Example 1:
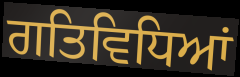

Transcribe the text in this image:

ਗਤਿਵਿਧਿਆਂ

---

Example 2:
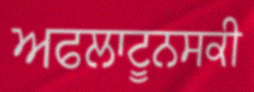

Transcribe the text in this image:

ਅਫਲਾਟੂਨਸਕੀ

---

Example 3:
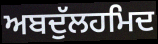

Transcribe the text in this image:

ਅਬਦੁੱਲਹਮਿਦ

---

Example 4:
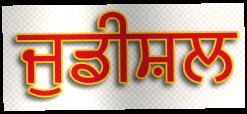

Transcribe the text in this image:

ਜੁਡੀਸ਼ਲ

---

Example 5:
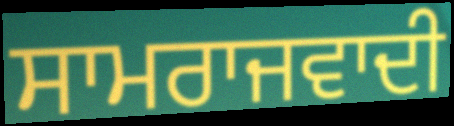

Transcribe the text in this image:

ਸਾਮਰਾਜਵਾਦੀ